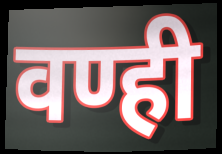
वण्ही